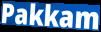
Pakkam